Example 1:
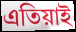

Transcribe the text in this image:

এতিয়াই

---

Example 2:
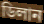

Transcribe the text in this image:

ডিলান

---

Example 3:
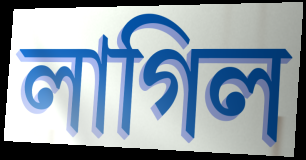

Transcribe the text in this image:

লাগিল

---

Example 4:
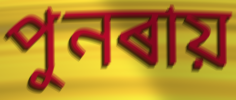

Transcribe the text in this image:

পুনৰায়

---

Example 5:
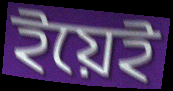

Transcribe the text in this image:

ইয়েই